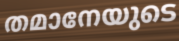
തമാനേയുടെ